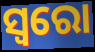
ସ୍ୱରୋ